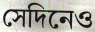
সেদিনেও